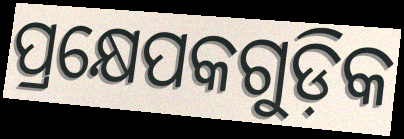
ପ୍ରକ୍ଷେପକଗୁଡ଼ିକ